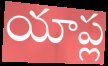
యాప్ల